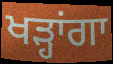
ਖੜ੍ਹਾਂਗਾ